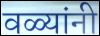
वळ्यांनी